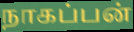
நாகப்பன்